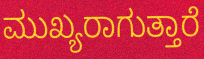
ಮುಖ್ಯರಾಗುತ್ತಾರೆ